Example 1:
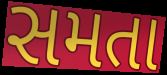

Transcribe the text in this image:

સમતા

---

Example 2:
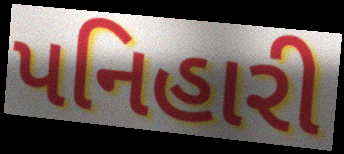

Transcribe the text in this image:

પનિહારી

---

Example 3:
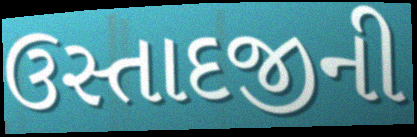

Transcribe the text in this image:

ઉસ્તાદજીની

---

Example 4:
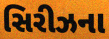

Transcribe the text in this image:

સિરીઝના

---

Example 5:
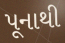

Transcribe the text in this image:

પૂનાથી